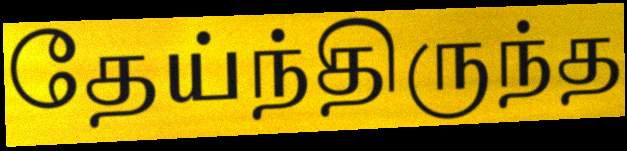
தேய்ந்திருந்த